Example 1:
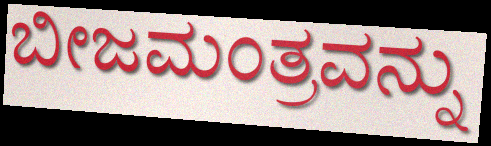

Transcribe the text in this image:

ಬೀಜಮಂತ್ರವನ್ನು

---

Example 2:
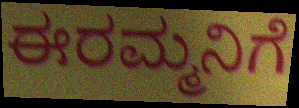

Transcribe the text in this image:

ಈರಮ್ಮನಿಗೆ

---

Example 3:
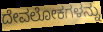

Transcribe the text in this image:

ದೇವಲೋಕಗಳನ್ನು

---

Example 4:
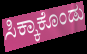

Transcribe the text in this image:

ಸಿಕ್ಕಾಕೊಂಡು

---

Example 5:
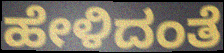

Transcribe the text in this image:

ಹೇಳಿದಂತೆ